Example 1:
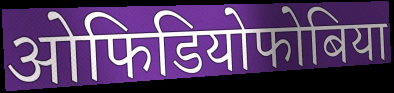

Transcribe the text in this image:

ओफिडियोफोबिया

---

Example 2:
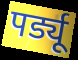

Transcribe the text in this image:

पर्ड्यू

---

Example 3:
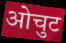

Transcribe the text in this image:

ओचुट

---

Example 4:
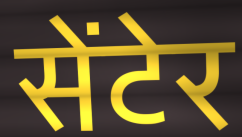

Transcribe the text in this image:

सेंटेर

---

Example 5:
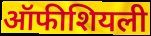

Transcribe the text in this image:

ऑफीशियली